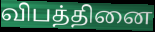
விபத்தினை